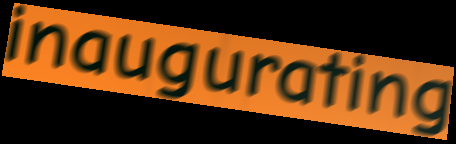
inaugurating